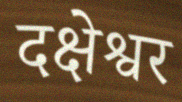
दक्षेश्वर